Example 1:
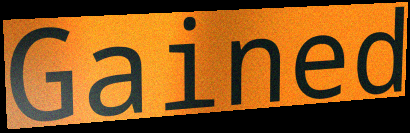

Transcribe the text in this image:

Gained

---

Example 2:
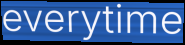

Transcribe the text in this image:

everytime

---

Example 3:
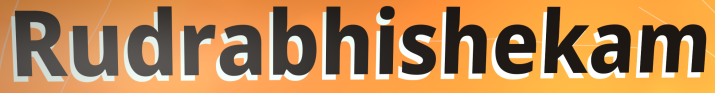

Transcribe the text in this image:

Rudrabhishekam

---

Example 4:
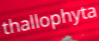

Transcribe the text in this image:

thallophyta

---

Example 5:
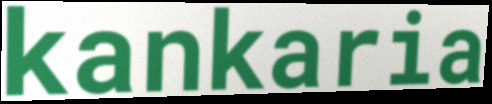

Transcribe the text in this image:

kankaria